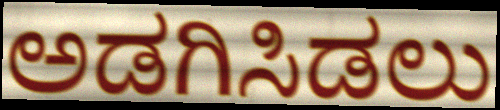
ಅಡಗಿಸಿಡಲು